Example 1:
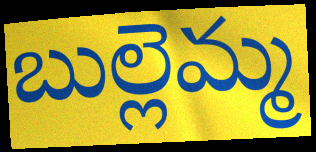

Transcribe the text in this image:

బుల్లెమ్మ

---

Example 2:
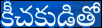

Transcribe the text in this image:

కీచకుడితో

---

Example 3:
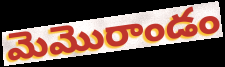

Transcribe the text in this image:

మెమొరాండం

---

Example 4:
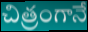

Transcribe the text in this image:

చిత్రంగానే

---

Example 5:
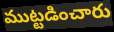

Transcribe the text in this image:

ముట్టడించారు